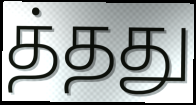
த்தது